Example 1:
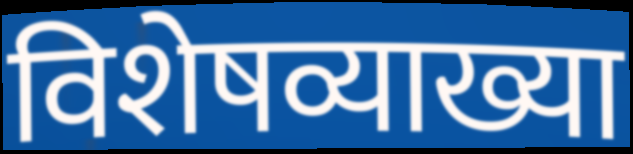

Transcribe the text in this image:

विशेषव्याख्या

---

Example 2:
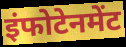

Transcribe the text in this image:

इंफोटेनमेंट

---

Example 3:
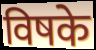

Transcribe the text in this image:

विषके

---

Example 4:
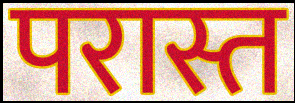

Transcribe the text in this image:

परास्त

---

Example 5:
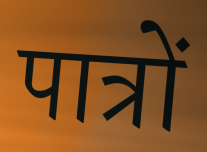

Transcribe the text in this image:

पात्रों